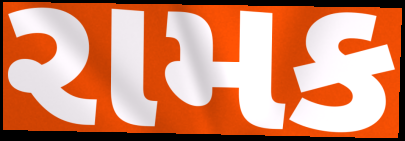
રામક